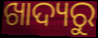
ଖାଦ୍ୟରୁ